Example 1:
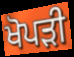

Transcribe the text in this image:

ਖੋਪੜੀ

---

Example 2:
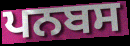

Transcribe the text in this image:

ਪਨਬਸ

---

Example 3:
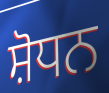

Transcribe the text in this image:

ਸ਼ੋਧਨ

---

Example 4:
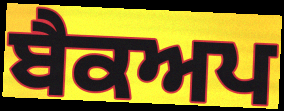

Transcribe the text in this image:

ਬੈਕਅਪ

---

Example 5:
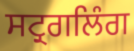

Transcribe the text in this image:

ਸਟ੍ਰਗਲਿੰਗ